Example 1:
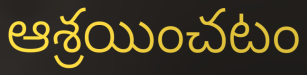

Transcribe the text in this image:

ఆశ్రయించటం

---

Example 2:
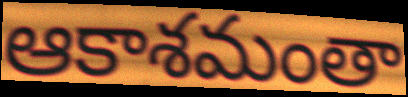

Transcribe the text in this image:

ఆకాశమంతా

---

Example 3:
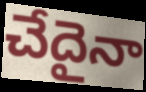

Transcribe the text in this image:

చేదైనా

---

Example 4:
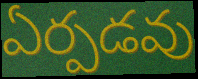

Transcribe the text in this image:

ఏర్పడవు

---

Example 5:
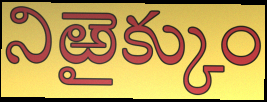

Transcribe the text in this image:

నిఱైక్కుం